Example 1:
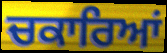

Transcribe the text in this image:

ਚਕਾਰਿਆਂ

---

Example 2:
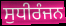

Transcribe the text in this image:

ਸੁਧੀਰੰਜਨ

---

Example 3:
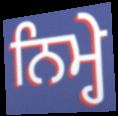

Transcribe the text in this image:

ਨਿਮ੍ਹੇ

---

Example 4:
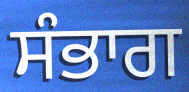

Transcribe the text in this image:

ਸੰਭਾਗ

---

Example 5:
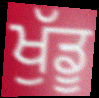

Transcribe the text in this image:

ਖੁੱਡੂ